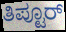
ತಿಪ್ಟೂರ್